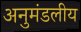
अनुमंडलीय